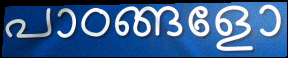
പാഠങ്ങളോ